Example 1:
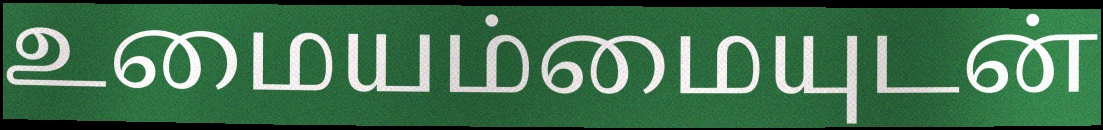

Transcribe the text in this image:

உமையம்மையுடன்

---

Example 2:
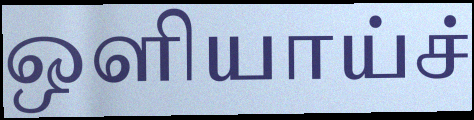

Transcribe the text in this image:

ஒளியாய்ச்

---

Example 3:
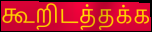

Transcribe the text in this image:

கூறிடத்தக்க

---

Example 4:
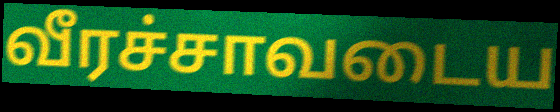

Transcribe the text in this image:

வீரச்சாவடைய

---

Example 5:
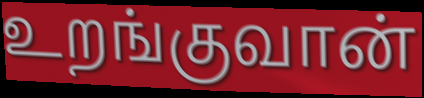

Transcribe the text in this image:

உறங்குவான்